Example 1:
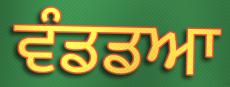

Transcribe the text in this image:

ਵੰਡਡਆ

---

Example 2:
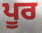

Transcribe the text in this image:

ਪੂਰ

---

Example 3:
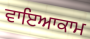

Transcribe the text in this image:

ਵਾਇਆਕਾਮ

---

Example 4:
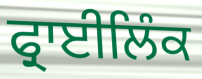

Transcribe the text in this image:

ਫ੍ਰਾਈਲਿੰਕ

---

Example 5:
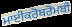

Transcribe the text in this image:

ਮਾਈਕਰੋਥਰੋਮਬੀ